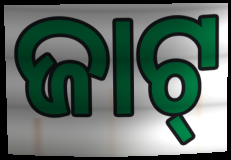
ଜାଟ୍